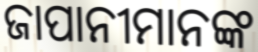
ଜାପାନୀମାନଙ୍କ